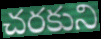
చరకుని